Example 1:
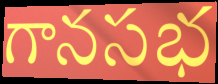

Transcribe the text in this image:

గానసభ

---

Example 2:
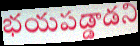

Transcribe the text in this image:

భయపడ్డాడని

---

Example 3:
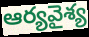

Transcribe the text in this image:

ఆర్యవైశ్య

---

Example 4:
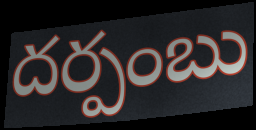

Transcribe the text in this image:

దర్పంబు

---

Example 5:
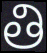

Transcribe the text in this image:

తి